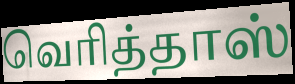
வெரித்தாஸ்